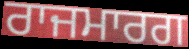
ਰਾਜਮਾਰਗ